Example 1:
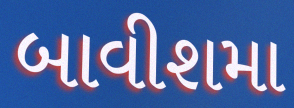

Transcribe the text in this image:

બાવીશમા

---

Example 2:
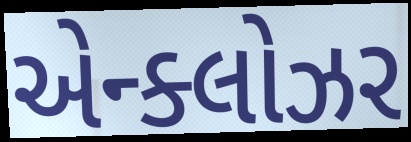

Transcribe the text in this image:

એન્ક્લોઝર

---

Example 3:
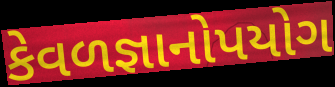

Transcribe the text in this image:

કેવળજ્ઞાનોપયોગ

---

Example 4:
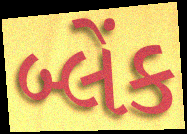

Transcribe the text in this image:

બ્લેંક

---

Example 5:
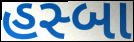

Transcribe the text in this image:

હસ્બા